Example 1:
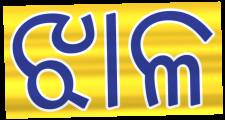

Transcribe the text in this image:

ଝାଳ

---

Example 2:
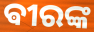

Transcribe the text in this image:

ଵୀରଙ୍କ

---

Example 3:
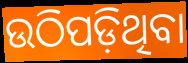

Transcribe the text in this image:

ଉଠିପଡ଼ିଥିବା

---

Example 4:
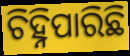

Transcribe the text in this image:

ଚିହ୍ନିପାରିଛି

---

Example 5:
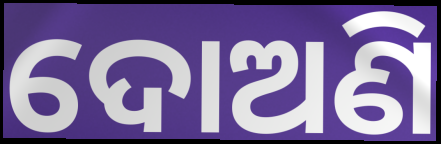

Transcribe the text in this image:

ଦୋଅଣି